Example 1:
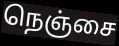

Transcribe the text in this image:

நெஞ்சை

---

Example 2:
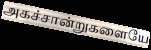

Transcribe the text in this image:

அகச்சான்றுகளையே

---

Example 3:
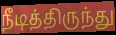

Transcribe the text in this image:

நீடித்திருந்து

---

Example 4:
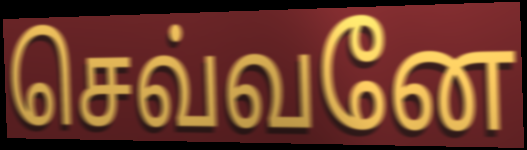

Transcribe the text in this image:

செவ்வனே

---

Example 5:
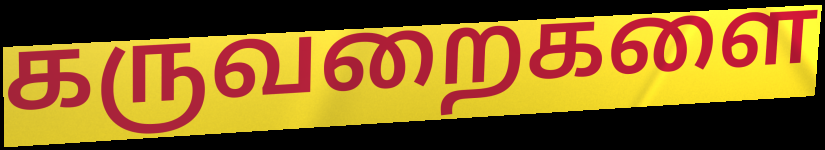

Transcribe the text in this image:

கருவறைகளை